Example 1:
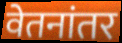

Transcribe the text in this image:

वेतनांतर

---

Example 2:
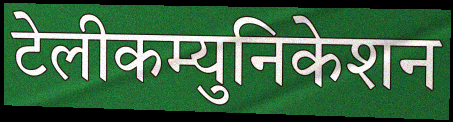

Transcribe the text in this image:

टेलीकम्युनिकेशन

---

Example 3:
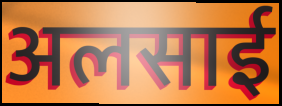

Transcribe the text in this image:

अलसाई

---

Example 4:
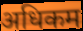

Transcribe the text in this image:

अधिकम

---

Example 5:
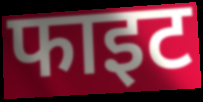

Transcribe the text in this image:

फाइट